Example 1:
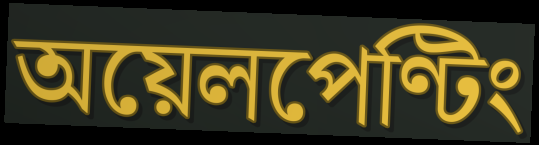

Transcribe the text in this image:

অয়েলপেণ্টিং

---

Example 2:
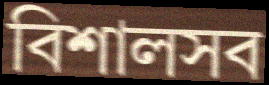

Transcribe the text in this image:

বিশালসব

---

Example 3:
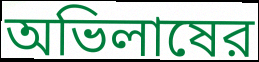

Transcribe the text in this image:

অভিলাষের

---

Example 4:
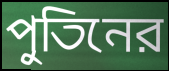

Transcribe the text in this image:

পুতিনের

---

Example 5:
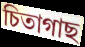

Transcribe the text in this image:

চিতাগাছ